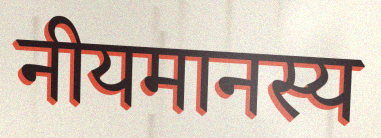
नीयमानस्य